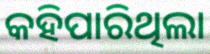
କହିପାରିଥିଲା